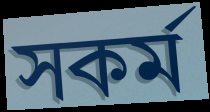
সকর্ম